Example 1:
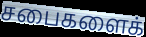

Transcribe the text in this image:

சபைகளைக்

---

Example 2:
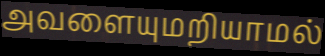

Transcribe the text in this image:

அவளையுமறியாமல்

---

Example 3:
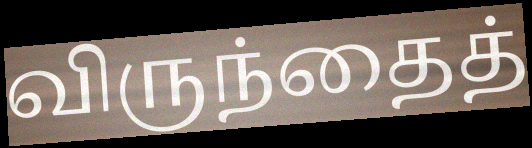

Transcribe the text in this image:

விருந்தைத்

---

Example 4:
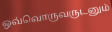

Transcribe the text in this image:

ஒவ்வொருவருடனும்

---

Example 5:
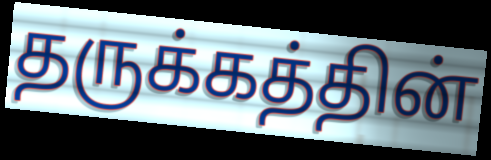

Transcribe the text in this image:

தருக்கத்தின்